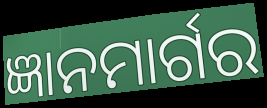
ଜ୍ଞାନମାର୍ଗର